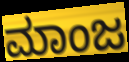
ಮಾಂಜ